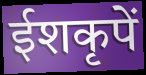
ईशकृपें